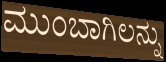
ಮುಂಬಾಗಿಲನ್ನು